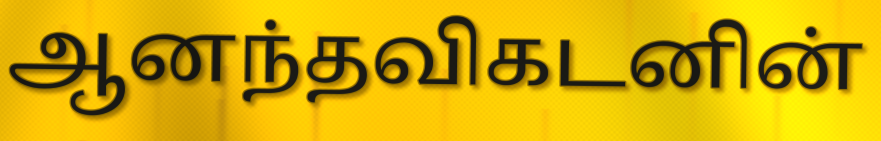
ஆனந்தவிகடனின்